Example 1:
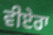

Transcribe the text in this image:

ਵੀਏਰਾ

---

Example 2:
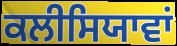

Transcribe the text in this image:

ਕਲੀਸਿਯਾਵਾਂ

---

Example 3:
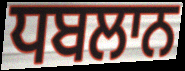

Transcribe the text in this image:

ਧਬਲਾਨ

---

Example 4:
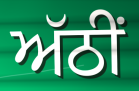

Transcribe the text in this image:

ਅੱਠੀਂ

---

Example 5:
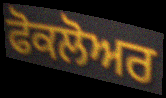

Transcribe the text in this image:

ਫੋਕਲੋਅਰ